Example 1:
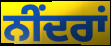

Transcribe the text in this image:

ਨੀਂਦਰਾਂ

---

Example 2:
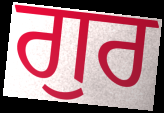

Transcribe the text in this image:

ਗੁਰ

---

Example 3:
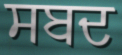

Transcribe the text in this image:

ਸਬਦ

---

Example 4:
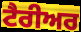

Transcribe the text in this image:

ਟੈਰੀਅਰ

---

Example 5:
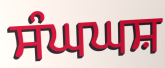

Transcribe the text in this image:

ਸੰਘਘਸ਼